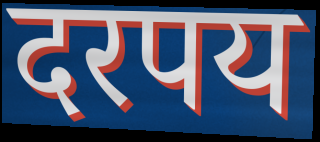
दरपय